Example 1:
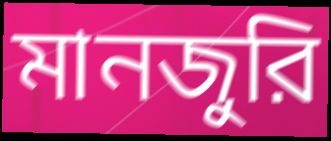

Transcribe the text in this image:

মানজুরি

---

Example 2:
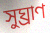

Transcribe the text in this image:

সুঘ্রাণ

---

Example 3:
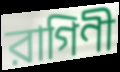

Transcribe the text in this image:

রাগিণী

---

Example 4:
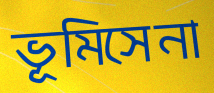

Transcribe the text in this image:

ভূমিসেনা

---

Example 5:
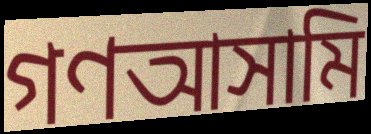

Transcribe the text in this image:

গণআসামি